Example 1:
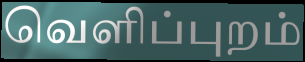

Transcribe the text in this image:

வெளிப்புறம்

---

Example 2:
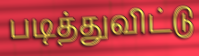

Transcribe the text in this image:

படித்துவிட்டு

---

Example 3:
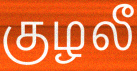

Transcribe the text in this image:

குழலீ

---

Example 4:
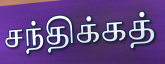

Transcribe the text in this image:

சந்திக்கத்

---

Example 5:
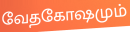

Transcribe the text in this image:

வேதகோஷமும்